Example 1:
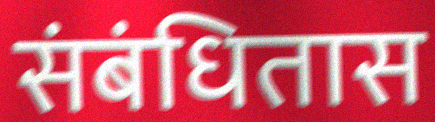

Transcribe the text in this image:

संबंधितास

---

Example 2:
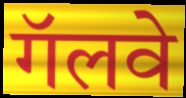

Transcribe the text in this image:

गॅलवे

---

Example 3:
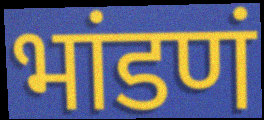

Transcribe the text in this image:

भांडणं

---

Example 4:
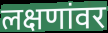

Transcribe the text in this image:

लक्षणांवर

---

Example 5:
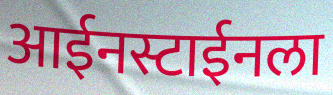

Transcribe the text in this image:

आईनस्टाईनला